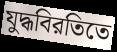
যুদ্ধবিরতিতে